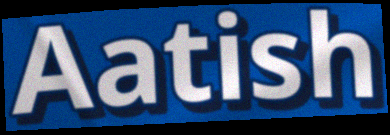
Aatish